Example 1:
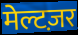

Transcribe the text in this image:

मेल्टज़र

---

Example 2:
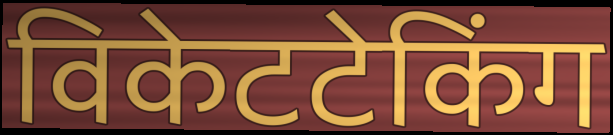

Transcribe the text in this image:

विकेटटेकिंग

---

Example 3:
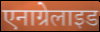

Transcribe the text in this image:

एनाग्रेलाइड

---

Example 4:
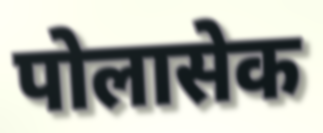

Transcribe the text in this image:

पोलासेक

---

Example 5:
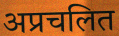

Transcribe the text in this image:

अप्रचलित